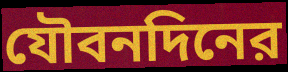
যৌবনদিনের